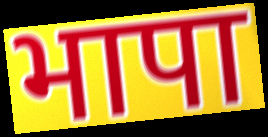
भापा